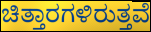
ಚಿತ್ತಾರಗಳಿರುತ್ತವೆ